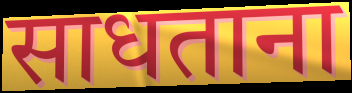
साधताना